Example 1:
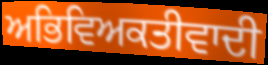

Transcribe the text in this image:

ਅਭਿਵਿਅਕਤੀਵਾਦੀ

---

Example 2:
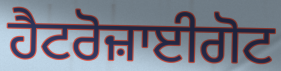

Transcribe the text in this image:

ਹੈਟਰੋਜ਼ਾਈਗੋਟ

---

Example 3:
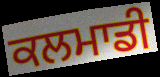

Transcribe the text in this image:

ਕਲਮਾਡੀ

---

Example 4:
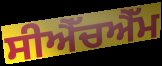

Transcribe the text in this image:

ਸੀਐੱਚਐੱਮ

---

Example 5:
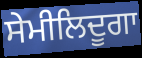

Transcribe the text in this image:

ਸੇਮੀਲਿਦੂਗਾ